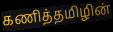
கணித்தமிழின்